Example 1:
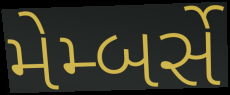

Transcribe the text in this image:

મેમ્બર્સે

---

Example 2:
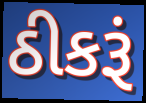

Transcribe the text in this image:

ઠીકરૂં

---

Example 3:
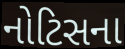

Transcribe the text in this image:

નોટિસના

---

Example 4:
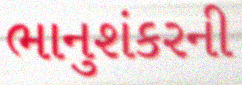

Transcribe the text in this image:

ભાનુશંકરની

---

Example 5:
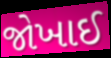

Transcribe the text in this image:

જોખાઈ